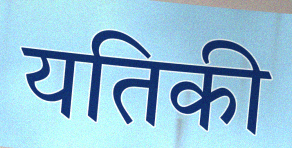
यतिकी